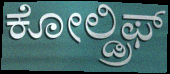
ಕೋಲ್ಡ್ರಿಫ್